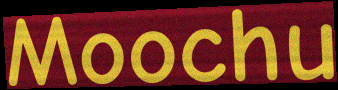
Moochu